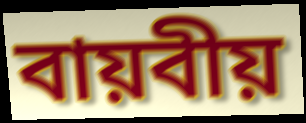
বায়বীয়